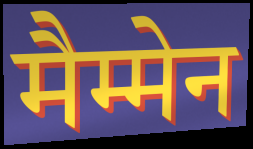
मैम्मेन